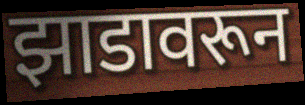
झाडावरून